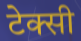
टेक्‍सी